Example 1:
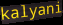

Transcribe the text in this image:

kalyani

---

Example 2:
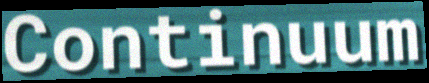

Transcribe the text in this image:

Continuum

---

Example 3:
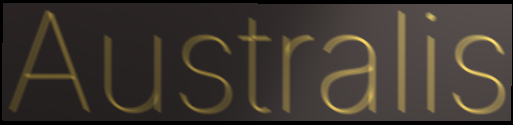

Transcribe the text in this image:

Australis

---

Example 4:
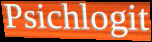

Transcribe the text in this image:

Psichlogit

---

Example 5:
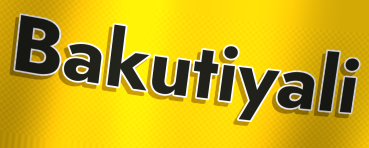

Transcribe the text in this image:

Bakutiyali